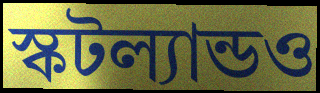
স্কটল্যান্ডও